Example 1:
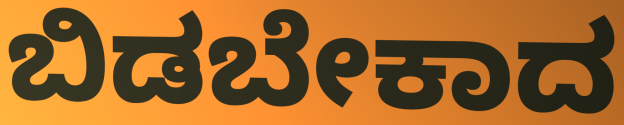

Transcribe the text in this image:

ಬಿಡಬೇಕಾದ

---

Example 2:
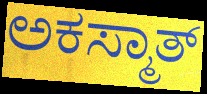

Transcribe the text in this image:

ಅಕಸ್ಮಾತ್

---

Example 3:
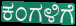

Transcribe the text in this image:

ಕಂಗಳಿಗೆ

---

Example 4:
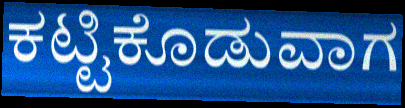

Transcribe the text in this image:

ಕಟ್ಟಿಕೊಡುವಾಗ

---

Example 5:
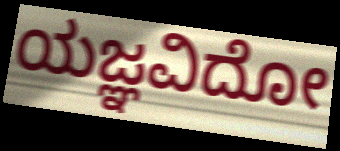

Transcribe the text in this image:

ಯಜ್ಞವಿದೋ